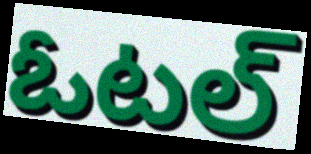
ఓటల్